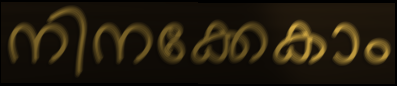
നിനക്കേകാം